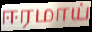
ஈரமாய்